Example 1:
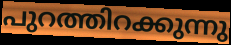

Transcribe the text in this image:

പുറത്തിറക്കുന്നു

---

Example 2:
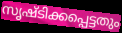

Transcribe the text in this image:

സൃഷ്ടിക്കപ്പെട്ടതും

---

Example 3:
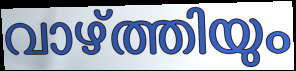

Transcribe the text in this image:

വാഴ്ത്തിയും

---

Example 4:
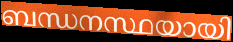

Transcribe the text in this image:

ബന്ധനസ്ഥയായി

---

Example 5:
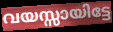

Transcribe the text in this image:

വയസ്സായിട്ടേ